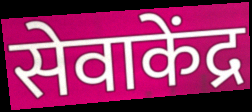
सेवाकेंद्र